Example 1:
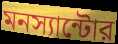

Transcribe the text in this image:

মনস্যান্টোর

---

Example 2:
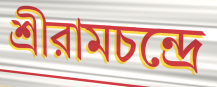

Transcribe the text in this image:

শ্রীরামচন্দ্রে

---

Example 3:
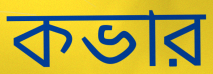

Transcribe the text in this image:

কভার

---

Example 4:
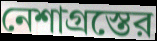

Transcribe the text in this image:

নেশাগ্রস্তের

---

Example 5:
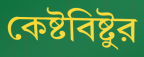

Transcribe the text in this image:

কেষ্টবিষ্টুর